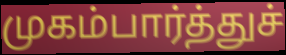
முகம்பார்த்துச்